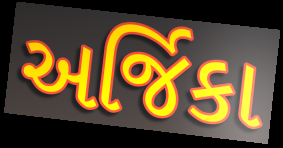
અર્જિકા